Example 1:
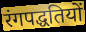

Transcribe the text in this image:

रंगपद्धतियों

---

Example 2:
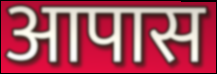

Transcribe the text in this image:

आपास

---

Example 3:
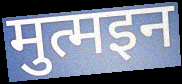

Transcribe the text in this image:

मुत्मइन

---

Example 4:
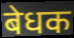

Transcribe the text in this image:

बेधक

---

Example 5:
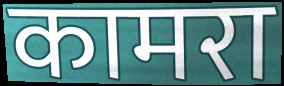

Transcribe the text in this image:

कामरा